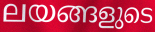
ലയങ്ങളുടെ